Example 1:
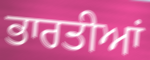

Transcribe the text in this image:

ਭਾਰਤੀਆਂ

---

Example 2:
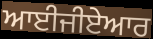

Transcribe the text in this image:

ਆਈਜੀਏਆਰ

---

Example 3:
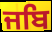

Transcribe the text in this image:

ਜਬਿ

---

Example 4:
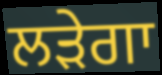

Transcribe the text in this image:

ਲੜੇਗਾ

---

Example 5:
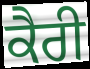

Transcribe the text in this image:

ਕੈਰੀ